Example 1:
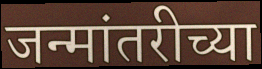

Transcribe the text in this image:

जन्मांतरीच्या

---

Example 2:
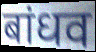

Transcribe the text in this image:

बांधव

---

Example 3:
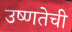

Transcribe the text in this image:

उष्णतेची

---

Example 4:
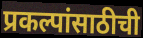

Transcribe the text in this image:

प्रकल्पांसाठीची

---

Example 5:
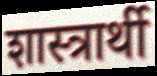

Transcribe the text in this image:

शास्त्रार्थी